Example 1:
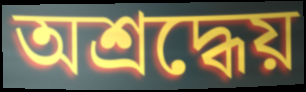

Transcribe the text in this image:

অশ্রদ্ধেয়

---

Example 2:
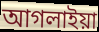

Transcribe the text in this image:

আগলাইয়া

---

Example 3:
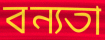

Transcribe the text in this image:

বন্যতা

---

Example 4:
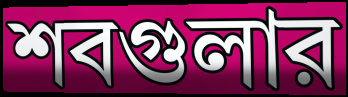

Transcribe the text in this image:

শবগুলার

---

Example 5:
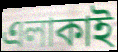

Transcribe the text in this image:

এলাকাই